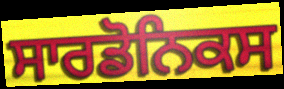
ਸਾਰਡੋਨਿਕਸ